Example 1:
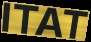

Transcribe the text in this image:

ITAT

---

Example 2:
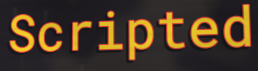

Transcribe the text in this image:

Scripted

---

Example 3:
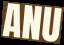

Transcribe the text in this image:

ANU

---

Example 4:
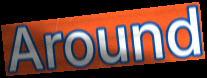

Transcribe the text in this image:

Around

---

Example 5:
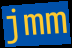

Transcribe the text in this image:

jmm